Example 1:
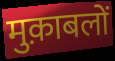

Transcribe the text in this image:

मुक़ाबलों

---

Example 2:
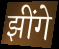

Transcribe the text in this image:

झींगे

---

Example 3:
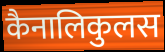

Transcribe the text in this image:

कैनालिकुलस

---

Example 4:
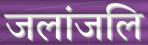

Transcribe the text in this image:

जलांजलि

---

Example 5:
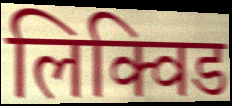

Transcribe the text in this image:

लिक्विड